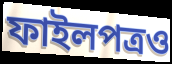
ফাইলপত্রও